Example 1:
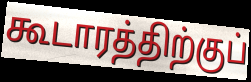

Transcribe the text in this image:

கூடாரத்திற்குப்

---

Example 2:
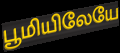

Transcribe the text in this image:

பூமியிலேயே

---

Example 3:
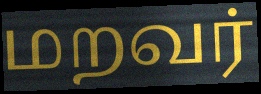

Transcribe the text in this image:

மறவர்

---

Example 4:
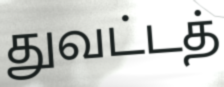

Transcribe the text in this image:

துவட்டத்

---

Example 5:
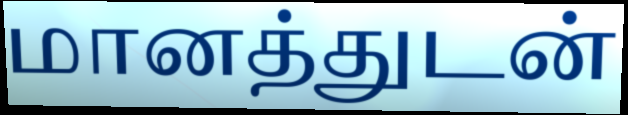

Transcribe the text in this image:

மானத்துடன்